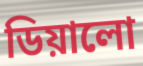
ডিয়ালো